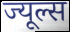
ज्यूल्स